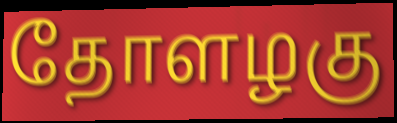
தோளழகு